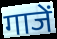
गाजें